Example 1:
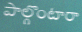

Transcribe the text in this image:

పాల్గొంటారా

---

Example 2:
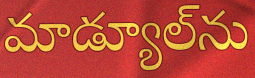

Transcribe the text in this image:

మాడ్యూల్‌ను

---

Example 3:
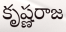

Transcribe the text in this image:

కృష్ణరాజ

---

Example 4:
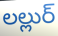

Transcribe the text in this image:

లల్లుర్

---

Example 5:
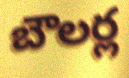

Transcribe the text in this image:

బౌలర్ల